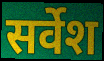
सर्वेश